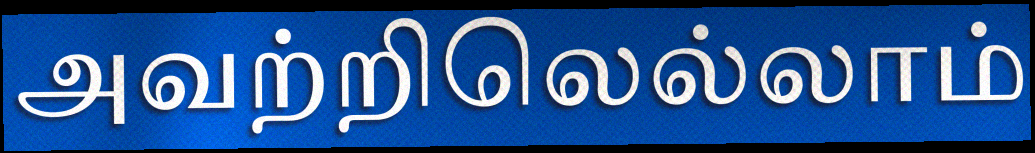
அவற்றிலெல்லாம்